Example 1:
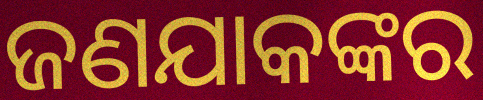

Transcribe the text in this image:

ଜଣଯାକଙ୍କର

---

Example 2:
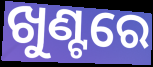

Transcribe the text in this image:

ଖୁଣ୍ଟରେ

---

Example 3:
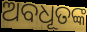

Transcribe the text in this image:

ଅବଧୂତଙ୍କ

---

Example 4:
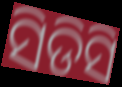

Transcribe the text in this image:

ସିଡିସି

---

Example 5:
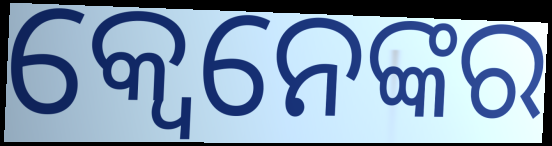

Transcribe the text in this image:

କ୍ବେନେଙ୍କର